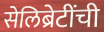
सेलिब्रेटींची